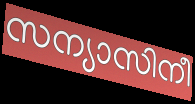
സന്യാസിനീ